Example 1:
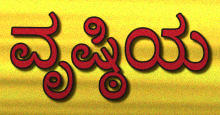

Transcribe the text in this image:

ವೃಷ್ಠಿಯ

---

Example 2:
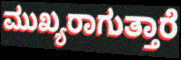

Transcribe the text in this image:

ಮುಖ್ಯರಾಗುತ್ತಾರೆ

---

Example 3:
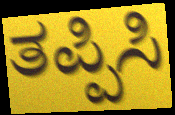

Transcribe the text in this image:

ತಪ್ಪಿಸಿ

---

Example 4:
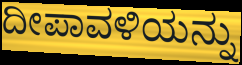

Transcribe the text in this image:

ದೀಪಾವಳಿಯನ್ನು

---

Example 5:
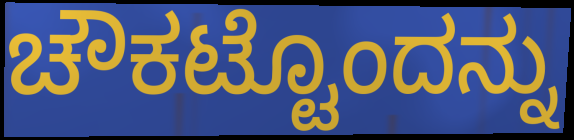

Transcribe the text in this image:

ಚೌಕಟ್ಟೊಂದನ್ನು